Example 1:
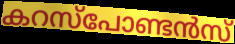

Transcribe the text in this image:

കറസ്പോണ്ടൻസ്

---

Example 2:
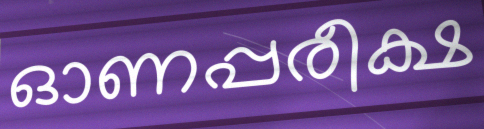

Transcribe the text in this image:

ഓണപ്പരീക്ഷ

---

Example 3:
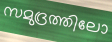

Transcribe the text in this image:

സമുദ്രത്തിലോ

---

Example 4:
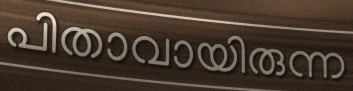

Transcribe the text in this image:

പിതാവായിരുന്ന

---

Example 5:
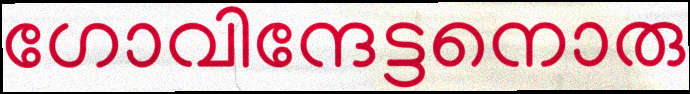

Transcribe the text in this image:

ഗോവിന്ദേട്ടനൊരു